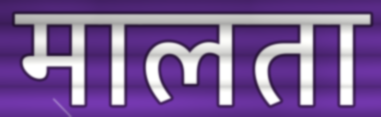
मालता